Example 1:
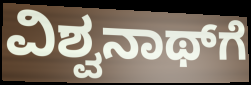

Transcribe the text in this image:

ವಿಶ್ವನಾಥ್‌ಗೆ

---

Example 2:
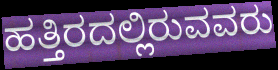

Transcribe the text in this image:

ಹತ್ತಿರದಲ್ಲಿರುವವರು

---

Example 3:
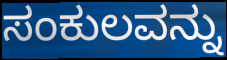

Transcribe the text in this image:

ಸಂಕುಲವನ್ನು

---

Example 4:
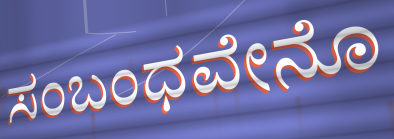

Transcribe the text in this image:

ಸಂಬಂಧವೇನೊ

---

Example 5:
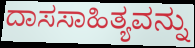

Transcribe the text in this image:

ದಾಸಸಾಹಿತ್ಯವನ್ನು